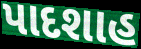
પાદશાહ